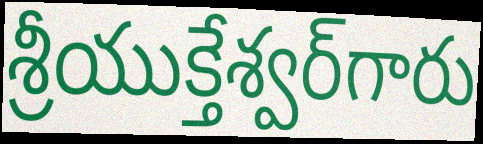
శ్రీయుక్తేశ్వర్‌గారు